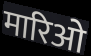
मारिओ